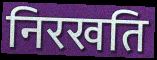
निरखति